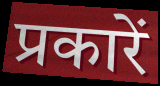
प्रकारें